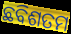
ଛବିଶତମ